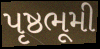
પૃષ્ઠભૂમી